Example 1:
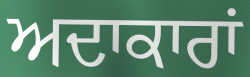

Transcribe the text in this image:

ਅਦਾਕਾਰਾਂ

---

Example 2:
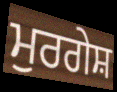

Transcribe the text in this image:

ਮੁਰਗੇਸ਼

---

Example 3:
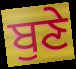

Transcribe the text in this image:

ਬੁਣੇ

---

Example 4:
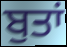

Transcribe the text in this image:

ਬੁਤਾਂ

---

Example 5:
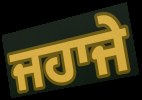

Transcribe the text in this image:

ਜਹਾਜੇ